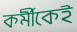
কর্মীকেই